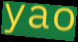
yao